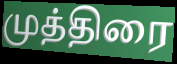
முத்திரை